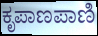
ಕೃಪಾಣಪಾಣಿ